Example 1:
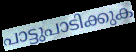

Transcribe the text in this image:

പാട്ടുപാടിക്കുക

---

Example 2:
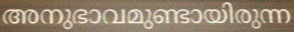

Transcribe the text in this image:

അനുഭാവമുണ്ടായിരുന്ന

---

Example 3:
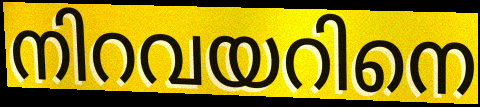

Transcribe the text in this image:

നിറവയറിനെ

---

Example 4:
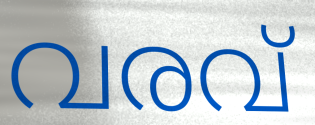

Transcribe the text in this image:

വരവ്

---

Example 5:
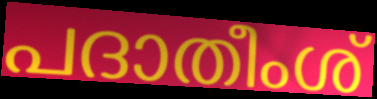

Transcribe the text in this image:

പദാതീംശ്